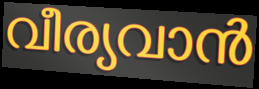
വീര്യവാൻ